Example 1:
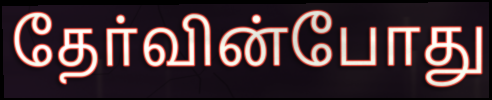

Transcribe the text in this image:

தேர்வின்போது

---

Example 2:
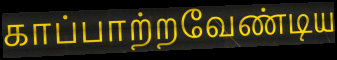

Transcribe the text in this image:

காப்பாற்றவேண்டிய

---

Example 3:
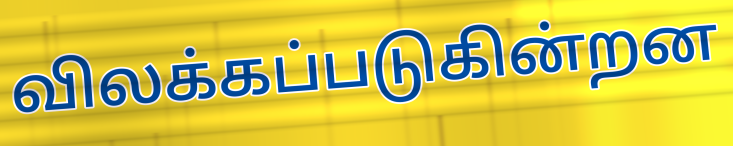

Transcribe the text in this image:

விலக்கப்படுகின்றன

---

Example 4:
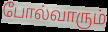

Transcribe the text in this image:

போல்வாரும்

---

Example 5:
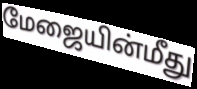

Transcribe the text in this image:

மேஜையின்மீது